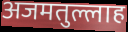
अजमतुल्लाह